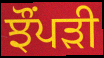
ਝੌਂਪੜੀ